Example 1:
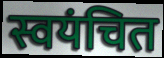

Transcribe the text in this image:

स्वयंचित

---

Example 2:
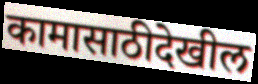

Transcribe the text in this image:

कामासाठीदेखील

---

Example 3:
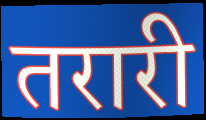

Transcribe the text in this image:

तरारी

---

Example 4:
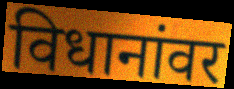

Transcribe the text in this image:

विधानांवर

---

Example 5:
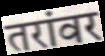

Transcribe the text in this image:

तरांवर